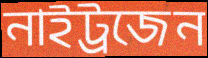
নাইট্রজেন